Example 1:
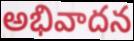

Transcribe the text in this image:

అభివాదన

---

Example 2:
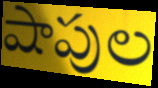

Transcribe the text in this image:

షాపుల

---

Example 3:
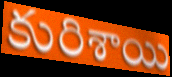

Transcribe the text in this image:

కురిశాయి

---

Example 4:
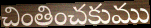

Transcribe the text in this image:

చింతించకుము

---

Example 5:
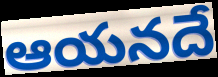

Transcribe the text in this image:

ఆయనదే